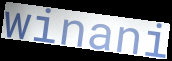
winani